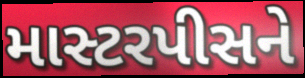
માસ્ટરપીસને